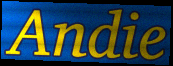
Andie